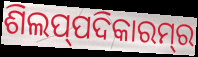
ଶିଲପ୍‍ପଦିକାରମ୍‍ର